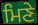
ਮਿਣੇ